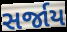
સર્જાય